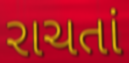
રાચતાં